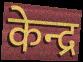
केन्‍द्र